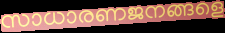
സാധാരണജനങ്ങളെ